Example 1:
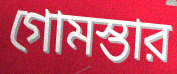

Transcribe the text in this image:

গোমস্তার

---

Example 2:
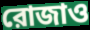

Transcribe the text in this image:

রোজাও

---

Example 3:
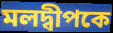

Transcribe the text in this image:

মলদ্বীপকে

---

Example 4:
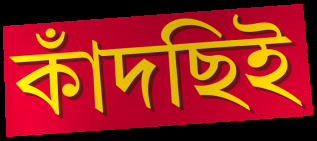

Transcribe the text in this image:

কাঁদছিই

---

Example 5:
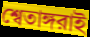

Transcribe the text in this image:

শ্বেতাঙ্গরাই